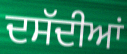
ਦਸੱਦੀਆਂ